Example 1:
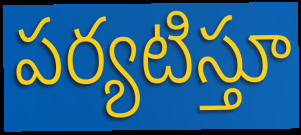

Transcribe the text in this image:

పర్యటిస్తూ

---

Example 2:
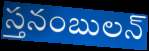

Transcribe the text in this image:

స్తనంబులన్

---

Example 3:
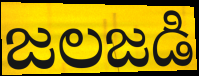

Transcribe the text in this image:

జలజడి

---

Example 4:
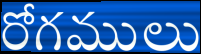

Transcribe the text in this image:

రోగములు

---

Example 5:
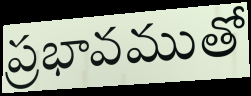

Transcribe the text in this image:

ప్రభావముతో